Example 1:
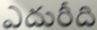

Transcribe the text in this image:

ఎదురీది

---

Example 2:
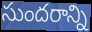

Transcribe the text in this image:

సుందరాన్ని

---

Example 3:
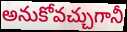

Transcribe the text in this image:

అనుకోవచ్చుగానీ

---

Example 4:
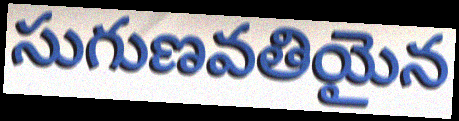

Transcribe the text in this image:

సుగుణవతియైన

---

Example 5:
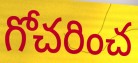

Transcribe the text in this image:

గోచరించ